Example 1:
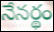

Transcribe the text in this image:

నేనర్థం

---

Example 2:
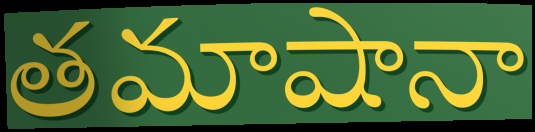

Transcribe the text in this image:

తమాషానా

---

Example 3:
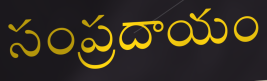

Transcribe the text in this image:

సంప్రదాయం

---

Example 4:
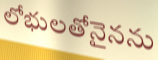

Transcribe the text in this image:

లోభులతోనైనను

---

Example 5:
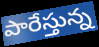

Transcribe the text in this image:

పారేస్తున్న